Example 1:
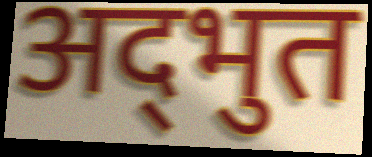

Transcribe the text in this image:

अद्भुत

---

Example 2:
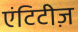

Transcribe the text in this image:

एंटिटीज़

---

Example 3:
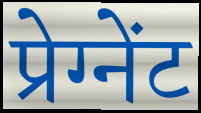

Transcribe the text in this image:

प्रेग्‍नेंट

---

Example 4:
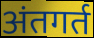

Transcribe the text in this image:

अंतगर्त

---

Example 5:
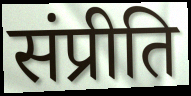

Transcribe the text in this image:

संप्रीति